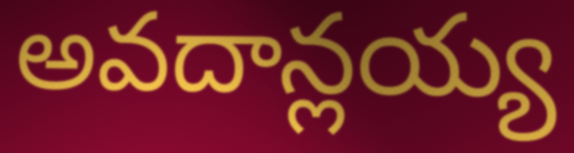
అవదాన్లయ్య